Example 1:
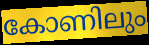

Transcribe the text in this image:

കോണിലും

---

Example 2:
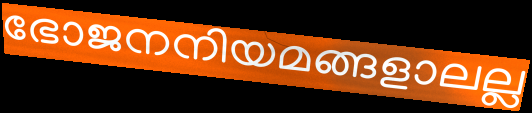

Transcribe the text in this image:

ഭോജനനിയമങ്ങളാലല്ല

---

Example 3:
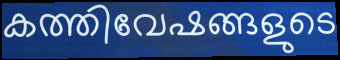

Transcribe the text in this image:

കത്തിവേഷങ്ങളുടെ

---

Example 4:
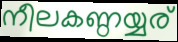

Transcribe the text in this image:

നീലകണ്ഠയ്യര്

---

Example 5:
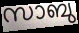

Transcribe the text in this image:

സാബു